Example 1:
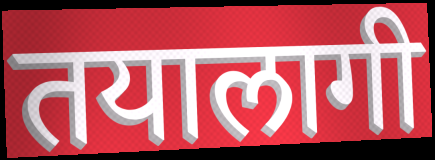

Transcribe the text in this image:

तयालागी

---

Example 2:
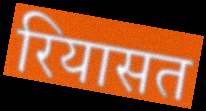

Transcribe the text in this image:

रियासत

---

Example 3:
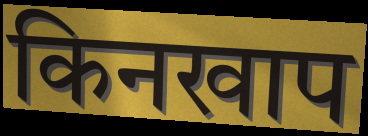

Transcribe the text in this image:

किनखाप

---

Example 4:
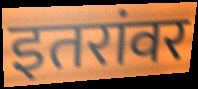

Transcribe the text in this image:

इतरांवर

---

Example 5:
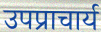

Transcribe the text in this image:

उपप्राचार्य